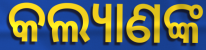
କଲ୍ୟାଣଙ୍କ